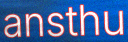
ansthu